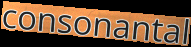
consonantal